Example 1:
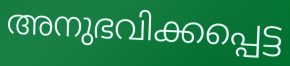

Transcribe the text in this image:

അനുഭവിക്കപ്പെട്ട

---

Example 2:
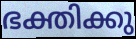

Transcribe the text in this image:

ഭക്തിക്കു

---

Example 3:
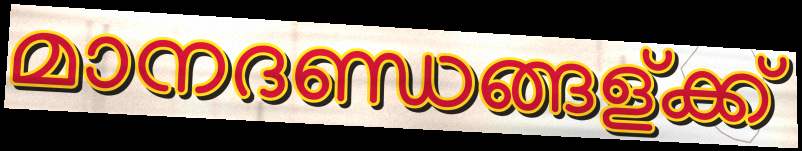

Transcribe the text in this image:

മാനദണ്ഡങ്ങള്ക്ക്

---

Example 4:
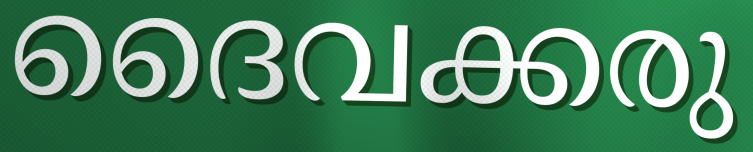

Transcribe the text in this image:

ദൈവക്കരു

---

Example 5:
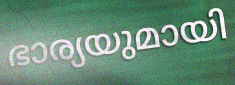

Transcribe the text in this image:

ഭാര്യയുമായി